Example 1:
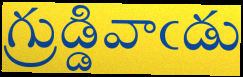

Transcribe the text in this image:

గ్రుడ్డివాఁడు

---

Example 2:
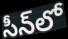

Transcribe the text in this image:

సీన్‌లో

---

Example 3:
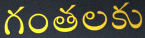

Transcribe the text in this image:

గంతలకు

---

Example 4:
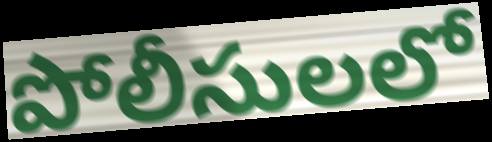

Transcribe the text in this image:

పోలీసులలో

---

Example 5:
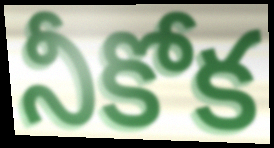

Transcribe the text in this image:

నీకోక